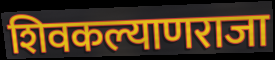
शिवकल्याणराजा